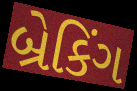
બ્રેકિંગ